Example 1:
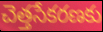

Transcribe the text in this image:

చెత్తసేకరణకు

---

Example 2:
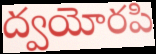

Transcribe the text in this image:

ద్వయోరపి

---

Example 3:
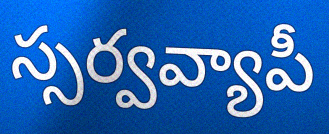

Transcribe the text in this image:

స్సర్వవ్యాపీ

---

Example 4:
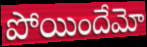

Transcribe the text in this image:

పోయిందేమో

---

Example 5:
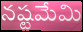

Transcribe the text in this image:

నష్టమేమి